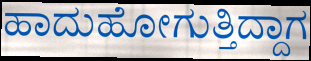
ಹಾದುಹೋಗುತ್ತಿದ್ದಾಗ